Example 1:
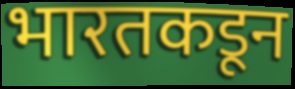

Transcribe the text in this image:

भारतकडून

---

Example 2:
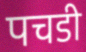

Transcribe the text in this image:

पचडी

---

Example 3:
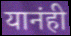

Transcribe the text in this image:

यानंही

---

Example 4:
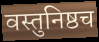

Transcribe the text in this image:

वस्तुनिष्ठच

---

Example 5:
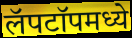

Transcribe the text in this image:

लॅपटॉपमध्ये